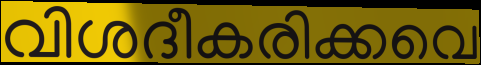
വിശദീകരിക്കവെ